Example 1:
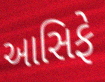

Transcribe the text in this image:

આસિફે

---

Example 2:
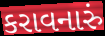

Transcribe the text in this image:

કરાવનારું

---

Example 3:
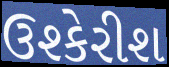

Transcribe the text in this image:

ઉશ્કેરીશ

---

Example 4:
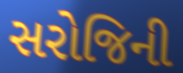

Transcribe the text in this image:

સરોજિની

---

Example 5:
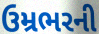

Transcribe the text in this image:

ઉમ્રભરની